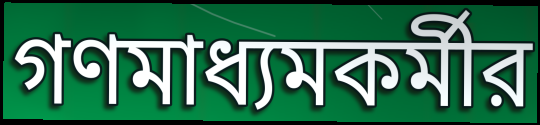
গণমাধ্যমকর্মীর